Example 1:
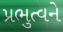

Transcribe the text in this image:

પ્રભુત્વને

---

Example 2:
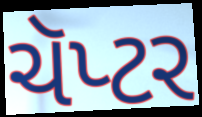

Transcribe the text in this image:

ચૅપ્ટર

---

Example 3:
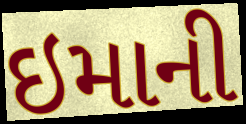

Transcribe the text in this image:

ઇમાની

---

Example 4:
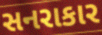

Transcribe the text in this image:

સનરાકાર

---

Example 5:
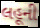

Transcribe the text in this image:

લહૂની